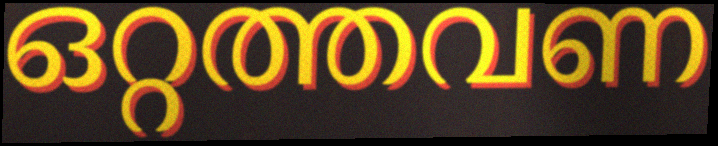
ഒറ്റത്തവണ